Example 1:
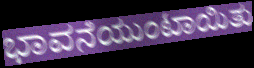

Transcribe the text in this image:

ಭಾವನೆಯುಂಟಾಯಿತು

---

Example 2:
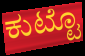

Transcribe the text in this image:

ಕುಟ್ಟೊ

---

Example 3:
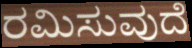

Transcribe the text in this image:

ರಮಿಸುವುದೆ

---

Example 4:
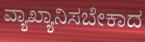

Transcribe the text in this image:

ವ್ಯಾಖ್ಯಾನಿಸಬೇಕಾದ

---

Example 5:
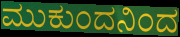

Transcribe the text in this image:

ಮುಕುಂದನಿಂದ